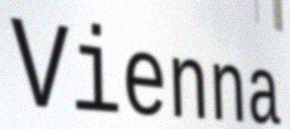
Vienna